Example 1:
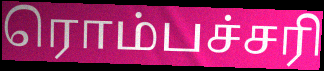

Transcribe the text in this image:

ரொம்பச்சரி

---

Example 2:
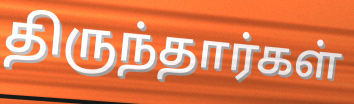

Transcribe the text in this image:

திருந்தார்கள்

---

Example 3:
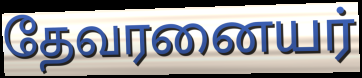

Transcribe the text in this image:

தேவரனையர்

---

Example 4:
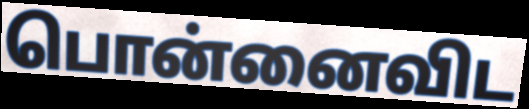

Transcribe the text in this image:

பொன்னைவிட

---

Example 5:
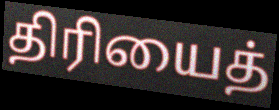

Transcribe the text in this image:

திரியைத்